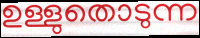
ഉള്ളുതൊടുന്ന